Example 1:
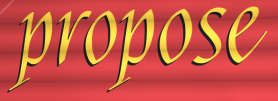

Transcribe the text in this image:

propose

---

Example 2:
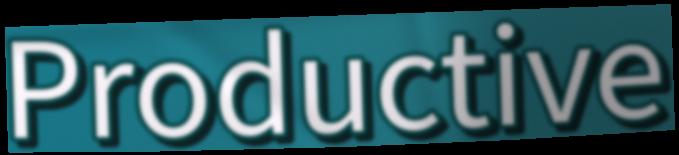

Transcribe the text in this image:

Productive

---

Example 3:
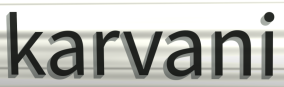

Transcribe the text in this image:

karvani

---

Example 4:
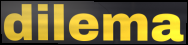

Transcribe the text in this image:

dilema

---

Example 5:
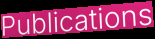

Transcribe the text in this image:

Publications